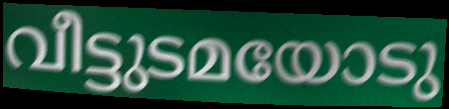
വീട്ടുടമയോടു